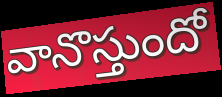
వానొస్తుందో